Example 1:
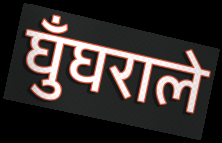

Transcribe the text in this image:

घुँघराले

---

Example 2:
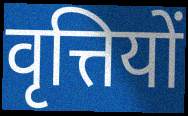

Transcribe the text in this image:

वृत्तियों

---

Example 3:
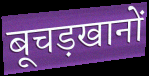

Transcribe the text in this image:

बूचड़खानों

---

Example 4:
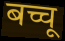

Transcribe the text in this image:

बच्चू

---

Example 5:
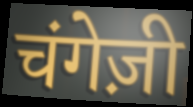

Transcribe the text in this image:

चंगेज़ी